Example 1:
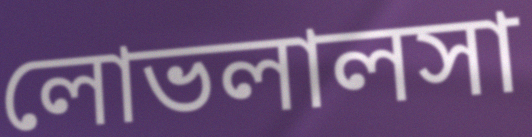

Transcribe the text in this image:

লোভলালসা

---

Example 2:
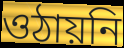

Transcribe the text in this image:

ওঠায়নি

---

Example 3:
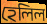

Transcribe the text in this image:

হেলিল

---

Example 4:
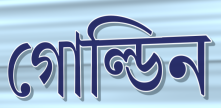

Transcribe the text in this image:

গোল্ডিন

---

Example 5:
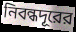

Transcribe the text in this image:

নিবন্ধদূরের